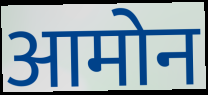
आमोन